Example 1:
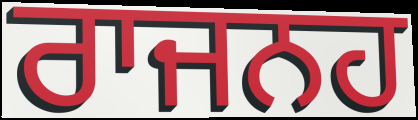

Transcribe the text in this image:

ਰਾਜਨਹ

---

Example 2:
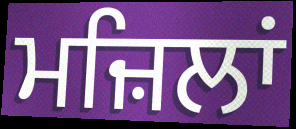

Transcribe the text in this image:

ਮਜ਼ਿਲਾਂ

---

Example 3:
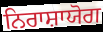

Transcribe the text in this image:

ਨਿਰਾਸ਼ਾਯੋਗ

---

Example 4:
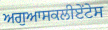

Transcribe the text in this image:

ਅਗੁਆਸਕਲੀਏਂਟੇਸ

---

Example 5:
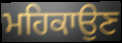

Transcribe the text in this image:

ਮਹਿਕਾਉਣ